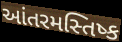
આંતરમસ્તિષ્ક